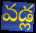
వడ్ల